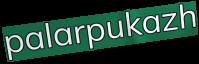
palarpukazh